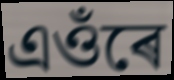
এওঁৰে